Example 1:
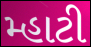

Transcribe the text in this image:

મ્હાટી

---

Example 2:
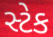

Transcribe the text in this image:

સ્ટેક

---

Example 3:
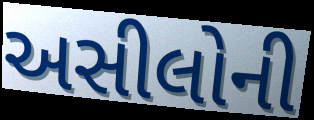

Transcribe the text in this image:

અસીલોની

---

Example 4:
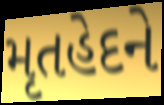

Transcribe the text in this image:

મૃતહેદને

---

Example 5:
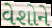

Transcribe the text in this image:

વેશોને